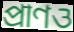
প্রাণও